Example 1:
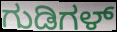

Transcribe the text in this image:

ಗುಡಿಗಳ್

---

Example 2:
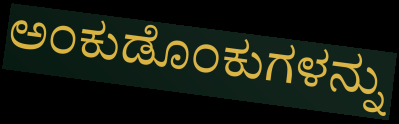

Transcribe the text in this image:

ಅಂಕುಡೊಂಕುಗಳನ್ನು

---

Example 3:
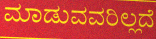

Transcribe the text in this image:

ಮಾಡುವವರಿಲ್ಲದೆ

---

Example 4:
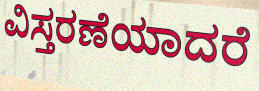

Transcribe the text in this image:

ವಿಸ್ತರಣೆಯಾದರೆ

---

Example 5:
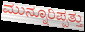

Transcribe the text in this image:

ಮುನ್ನೂರಿಪ್ಪತ್ತು